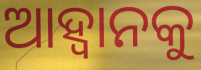
ଆହ୍ବାନକୁ